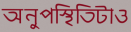
অনুপস্থিতিটাও